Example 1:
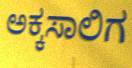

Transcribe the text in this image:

ಅಕ್ಕಸಾಲಿಗ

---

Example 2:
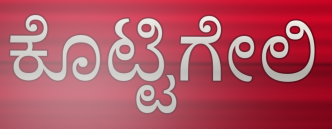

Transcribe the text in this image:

ಕೊಟ್ಟಿಗೇಲಿ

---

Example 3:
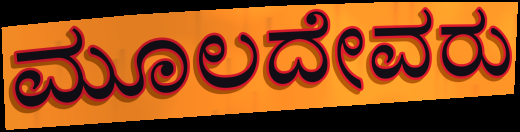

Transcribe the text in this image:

ಮೂಲದೇವರು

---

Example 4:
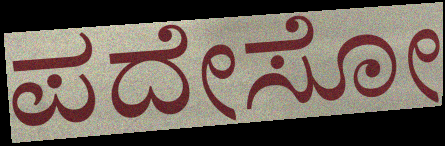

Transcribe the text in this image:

ಪದೇಸೋ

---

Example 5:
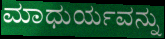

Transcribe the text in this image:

ಮಾಧುರ್ಯವನ್ನು